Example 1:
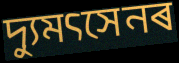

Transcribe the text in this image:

দ্যুমৎসেনৰ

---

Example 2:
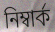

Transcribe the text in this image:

নিম্বাৰ্ক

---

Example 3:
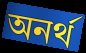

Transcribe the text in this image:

অনৰ্থ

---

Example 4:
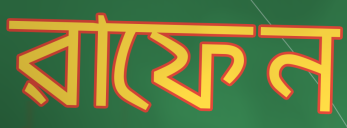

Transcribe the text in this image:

ৱাফেন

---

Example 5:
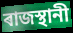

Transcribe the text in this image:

ৰাজস্থানী